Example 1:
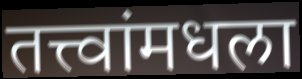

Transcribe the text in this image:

तत्त्वांमधला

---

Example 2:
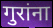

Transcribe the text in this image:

गुरांना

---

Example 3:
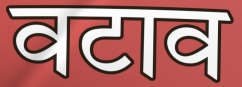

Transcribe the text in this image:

वटाव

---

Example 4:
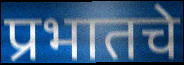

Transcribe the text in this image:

प्रभातचे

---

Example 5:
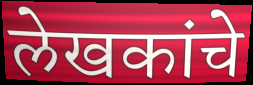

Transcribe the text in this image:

लेखकांचे